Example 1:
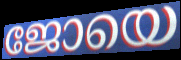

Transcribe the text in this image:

ജോയെ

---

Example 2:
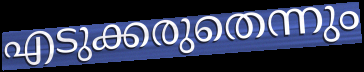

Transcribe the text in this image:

എടുക്കരുതെന്നും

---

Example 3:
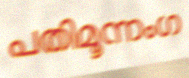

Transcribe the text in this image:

പതിമൂന്നംഗ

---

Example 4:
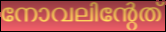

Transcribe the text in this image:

നോവലിന്റേത്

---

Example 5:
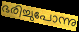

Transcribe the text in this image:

ഭരിച്ചുപോന്നു